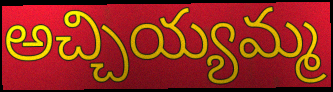
అచ్చియ్యమ్మ